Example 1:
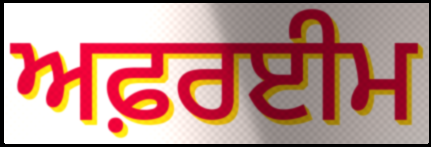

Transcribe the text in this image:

ਅਫ਼ਰਈਮ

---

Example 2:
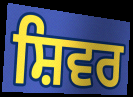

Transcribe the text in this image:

ਸ਼ਿਵਰ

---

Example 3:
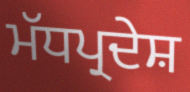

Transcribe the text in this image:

ਮੱਧਪ੍ਰਦੇਸ਼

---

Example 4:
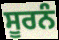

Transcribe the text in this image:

ਸੂਰਨੰ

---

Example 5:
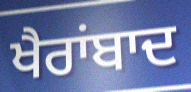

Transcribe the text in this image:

ਖੈਰਾਂਬਾਦ